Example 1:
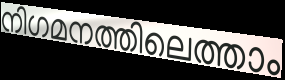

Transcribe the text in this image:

നിഗമനത്തിലെത്താം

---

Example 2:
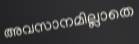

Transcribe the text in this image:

അവസാനമില്ലാതെ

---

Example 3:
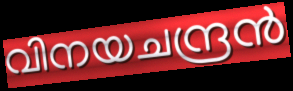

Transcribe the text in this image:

വിനയചന്ദ്രൻ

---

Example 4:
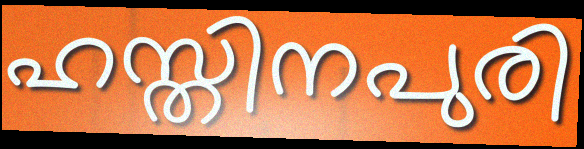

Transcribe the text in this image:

ഹസ്തിനപുരി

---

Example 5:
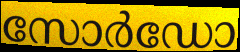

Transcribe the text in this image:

സോർഡോ